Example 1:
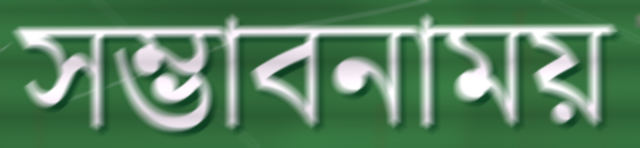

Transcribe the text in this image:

সম্ভাবনাময়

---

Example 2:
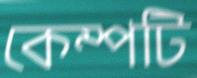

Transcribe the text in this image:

কেম্পটি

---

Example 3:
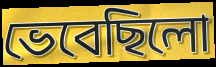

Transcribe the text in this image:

ভেবেছিলো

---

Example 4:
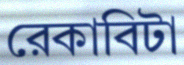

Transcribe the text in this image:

রেকাবিটা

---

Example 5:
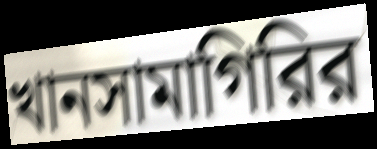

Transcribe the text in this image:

খানসামাগিরির